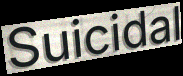
Suicidal